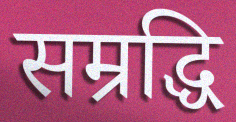
सम्रद्धि